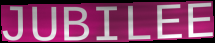
JUBILEE